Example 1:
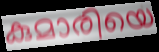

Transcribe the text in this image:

കുമാരിയെ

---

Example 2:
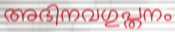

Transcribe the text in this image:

അഭിനവഗുപ്തനം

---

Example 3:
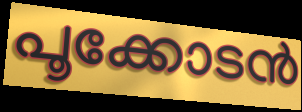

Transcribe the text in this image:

പൂക്കോടൻ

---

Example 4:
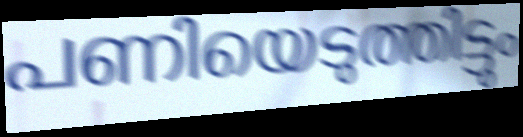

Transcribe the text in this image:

പണിയെടുത്തിട്ടും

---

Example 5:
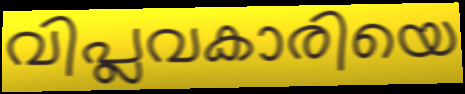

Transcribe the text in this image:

വിപ്ലവകാരിയെ